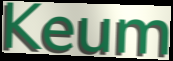
Keum